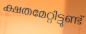
ക്ഷതമേറ്റിട്ടുണ്ട്